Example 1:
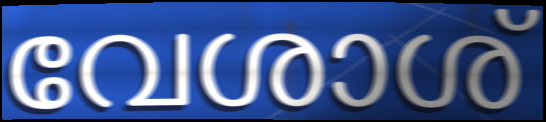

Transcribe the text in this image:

വേശാശ്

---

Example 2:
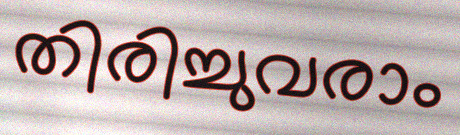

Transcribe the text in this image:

തിരിച്ചുവരാം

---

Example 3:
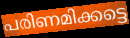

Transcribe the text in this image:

പരിണമിക്കട്ടെ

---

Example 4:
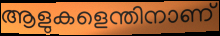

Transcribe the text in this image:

ആളുകളെന്തിനാണ്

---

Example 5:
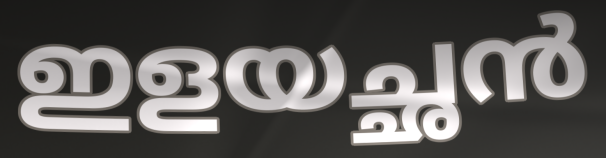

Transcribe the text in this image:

ഇളയച്ഛൻ